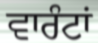
ਵਾਰੰਟਾਂ